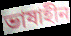
ভাষাহীন